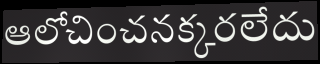
ఆలోచించనక్కరలేదు